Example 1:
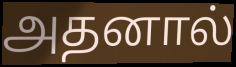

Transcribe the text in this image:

அதனால்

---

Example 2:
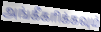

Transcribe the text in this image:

அங்கீகரிக்கவும்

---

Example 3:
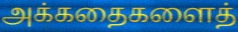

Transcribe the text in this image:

அக்கதைகளைத்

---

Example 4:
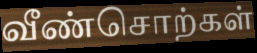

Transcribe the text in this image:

வீண்சொற்கள்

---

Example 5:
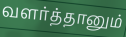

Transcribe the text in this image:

வளர்த்தானும்